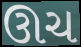
ઊચ